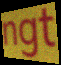
ngt